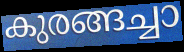
കുരങ്ങച്ചാ